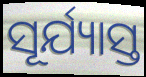
ସୂର୍ଯ୍ୟାସ୍ତ